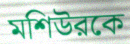
মশিউরকে